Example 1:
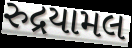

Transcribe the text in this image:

રુદ્રયામલ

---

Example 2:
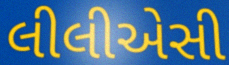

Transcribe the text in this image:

લીલીએસી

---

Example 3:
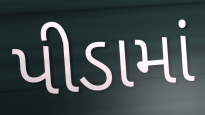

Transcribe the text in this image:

પીડામાં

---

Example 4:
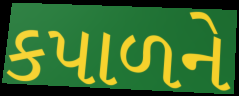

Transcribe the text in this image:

કપાળને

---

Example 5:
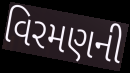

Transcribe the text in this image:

વિરમણની